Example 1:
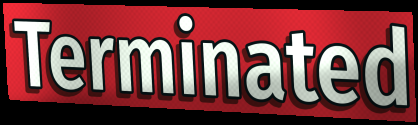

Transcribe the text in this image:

Terminated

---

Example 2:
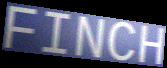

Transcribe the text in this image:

FINCH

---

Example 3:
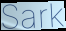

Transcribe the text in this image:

Sark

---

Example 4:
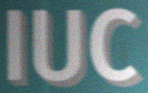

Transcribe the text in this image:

IUC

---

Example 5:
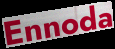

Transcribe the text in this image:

Ennoda